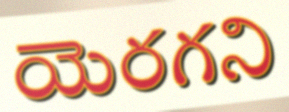
యెరగని